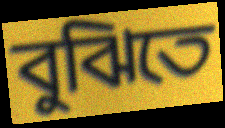
বুঝিতে